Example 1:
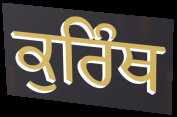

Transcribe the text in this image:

ਕੁਰਿੰਥ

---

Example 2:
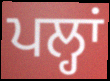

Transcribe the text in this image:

ਪਲ੍ਹਾਂ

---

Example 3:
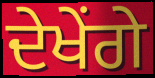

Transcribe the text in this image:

ਦੇਖੇਂਗੇ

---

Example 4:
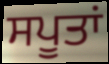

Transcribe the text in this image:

ਸਪੂਤਾਂ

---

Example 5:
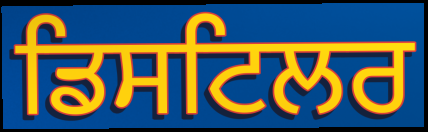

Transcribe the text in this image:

ਡਿਸਟਿਲਰ